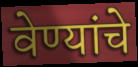
वेण्यांचे